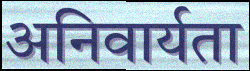
अनिवार्यता